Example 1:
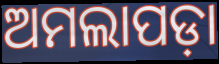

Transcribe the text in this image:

ଅମଲାପଡ଼ା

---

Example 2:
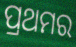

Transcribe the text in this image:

ପ୍ରଥମର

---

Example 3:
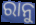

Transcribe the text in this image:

ରାନୁ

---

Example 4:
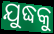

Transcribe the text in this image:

ଯୁଦ୍ଧକୁ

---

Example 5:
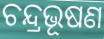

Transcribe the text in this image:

ଚନ୍ଦ୍ରଭୂଷଣ